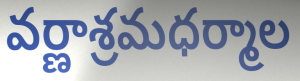
వర్ణాశ్రమధర్మాల